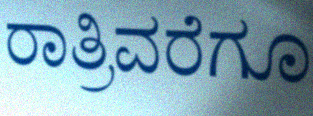
ರಾತ್ರಿವರೆಗೂ